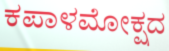
ಕಪಾಳಮೋಕ್ಷದ